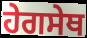
ਹੇਗਸੇਥ